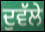
ਦੁਵੱਲੇ